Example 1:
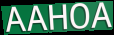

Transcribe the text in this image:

AAHOA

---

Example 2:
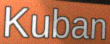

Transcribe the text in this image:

Kuban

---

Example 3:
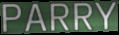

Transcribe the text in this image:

PARRY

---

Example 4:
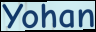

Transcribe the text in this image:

Yohan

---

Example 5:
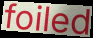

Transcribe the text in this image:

foiled